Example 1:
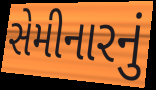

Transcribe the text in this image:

સેમીનારનું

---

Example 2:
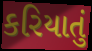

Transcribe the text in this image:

કરિયાતું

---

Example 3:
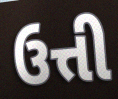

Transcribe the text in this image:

ઉત્તી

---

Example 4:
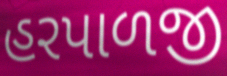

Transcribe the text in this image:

હરપાળજી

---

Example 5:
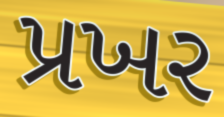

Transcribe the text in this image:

પ્રખર